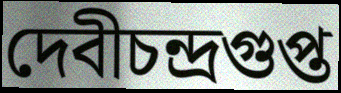
দেবীচন্দ্রগুপ্ত